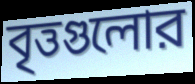
বৃত্তগুলোর